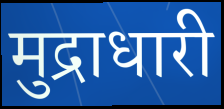
मुद्राधारी